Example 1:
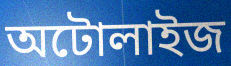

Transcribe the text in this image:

অটোলাইজ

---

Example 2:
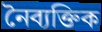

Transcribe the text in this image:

নৈব্যক্তিক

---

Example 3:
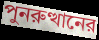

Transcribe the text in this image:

পুনরুত্থানের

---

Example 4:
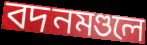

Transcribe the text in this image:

বদনমণ্ডলে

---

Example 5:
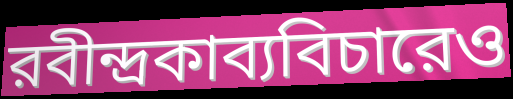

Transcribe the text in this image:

রবীন্দ্রকাব্যবিচারেও